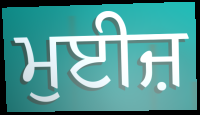
ਮੁਈਜ਼